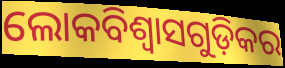
ଲୋକବିଶ୍ଵାସଗୁଡ଼ିକର